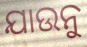
ଯାଉନୁ